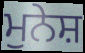
ਮੁਨੇਸ਼